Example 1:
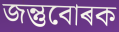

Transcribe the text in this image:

জন্তুবোৰক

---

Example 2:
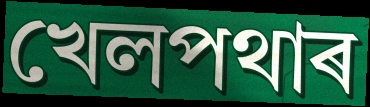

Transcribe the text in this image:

খেলপথাৰ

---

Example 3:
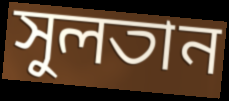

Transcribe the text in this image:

সুলতান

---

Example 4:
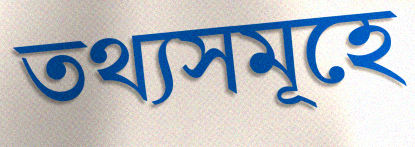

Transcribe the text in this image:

তথ্যসমূহে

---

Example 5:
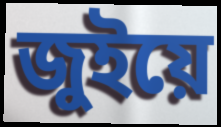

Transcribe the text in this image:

জুইয়ে